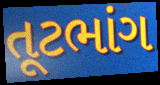
તૂટભાંગ